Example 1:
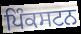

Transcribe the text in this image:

ਪਿੰਕਸਟਨ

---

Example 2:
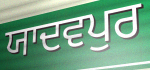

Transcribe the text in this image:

ਯਾਦਵਪੁਰ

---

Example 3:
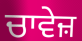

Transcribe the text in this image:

ਚਾਵੇਜ਼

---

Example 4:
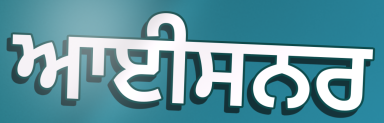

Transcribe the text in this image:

ਆਈਸਨਰ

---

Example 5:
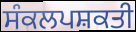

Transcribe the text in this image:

ਸੰਕਲਪਸ਼ਕਤੀ